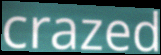
crazed